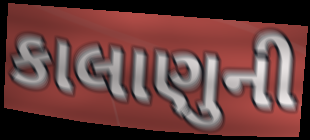
કાલાણુની